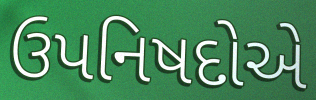
ઉપનિષદોએ